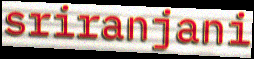
sriranjani